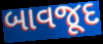
બાવજૂદ